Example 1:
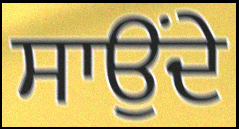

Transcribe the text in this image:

ਸਾਉਂਦੇ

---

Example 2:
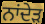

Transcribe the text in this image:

ਨਾਂਦੇੜ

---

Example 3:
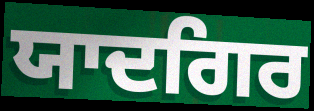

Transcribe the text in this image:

ਯਾਦਗਿਰ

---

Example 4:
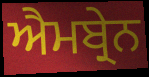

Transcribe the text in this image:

ਐਮਬ੍ਰੇਨ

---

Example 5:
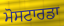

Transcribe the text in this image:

ਮੋਸਟਾਰਡਾ